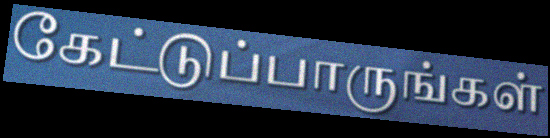
கேட்டுப்பாருங்கள்